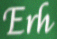
Erh